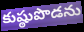
కుష్ఠుపొడను